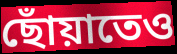
ছোঁয়াতেও